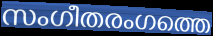
സംഗീതരംഗത്തെ